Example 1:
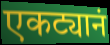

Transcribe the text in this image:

एकट्यानं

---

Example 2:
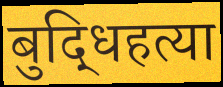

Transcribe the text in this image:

बुद्धिहत्या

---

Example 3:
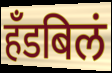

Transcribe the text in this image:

हँडबिलं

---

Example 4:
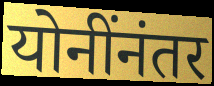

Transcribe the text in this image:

योनींनंतर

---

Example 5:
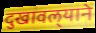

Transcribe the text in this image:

दुखावल्याने